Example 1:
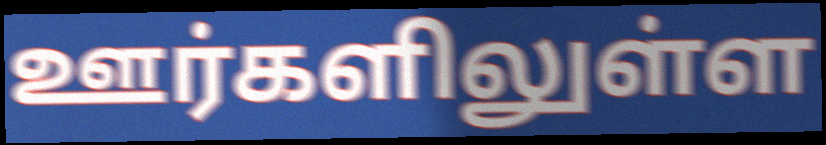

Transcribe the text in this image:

ஊர்களிலுள்ள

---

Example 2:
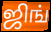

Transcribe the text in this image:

ஜிங்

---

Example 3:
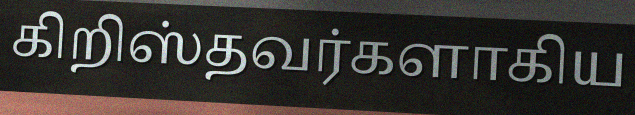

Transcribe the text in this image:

கிறிஸ்தவர்களாகிய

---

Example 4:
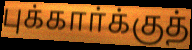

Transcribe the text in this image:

புக்கார்க்குத்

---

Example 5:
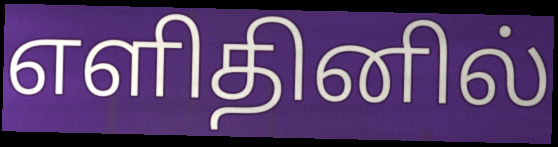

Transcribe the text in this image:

எளிதினில்